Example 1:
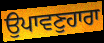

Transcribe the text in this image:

ਉਪਾਵਣੁਹਾਰਾ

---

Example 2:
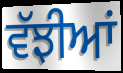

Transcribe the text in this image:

ਵੱਝੀਆਂ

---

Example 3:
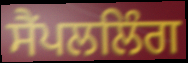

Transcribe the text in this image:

ਸੈਂਪਲਲਿੰਗ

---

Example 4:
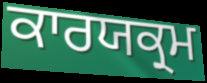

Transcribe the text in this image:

ਕਾਰਯਕ੍ਰਮ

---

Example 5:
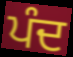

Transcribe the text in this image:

ਪੰਦ